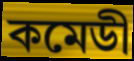
কমেডী